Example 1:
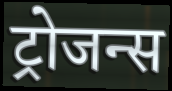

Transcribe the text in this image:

ट्रोजन्स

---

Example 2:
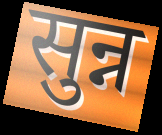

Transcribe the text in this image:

सुन्न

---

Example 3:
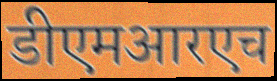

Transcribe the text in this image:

डीएमआरएच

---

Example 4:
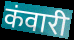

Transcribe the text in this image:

कंवारी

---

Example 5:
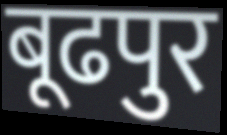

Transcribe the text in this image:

बूढपुर